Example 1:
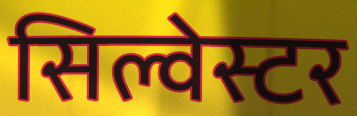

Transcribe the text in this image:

सिल्वेस्टर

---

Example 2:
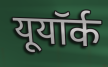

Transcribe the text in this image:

यूयॉर्क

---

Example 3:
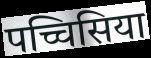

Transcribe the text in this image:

पच्चिसिया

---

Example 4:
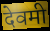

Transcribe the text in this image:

देवमी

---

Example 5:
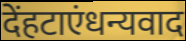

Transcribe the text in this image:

देंहटाएंधन्यवाद